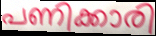
പണിക്കാരി